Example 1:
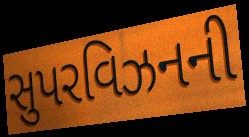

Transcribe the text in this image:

સુપરવિઝનની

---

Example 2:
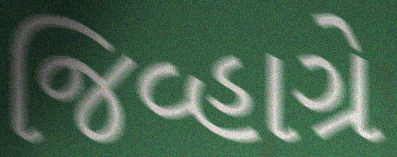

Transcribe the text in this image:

જિવ્હાગ્રે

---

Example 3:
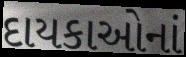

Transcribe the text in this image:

દાયકાઓનાં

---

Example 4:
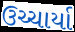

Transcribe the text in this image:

ઉચ્ચાર્યા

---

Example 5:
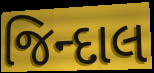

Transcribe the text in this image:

જિન્દાલ